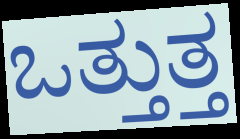
ಒತ್ತುತ್ತ